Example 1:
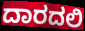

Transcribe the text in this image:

ದಾರದಲಿ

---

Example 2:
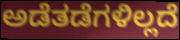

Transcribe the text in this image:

ಅಡೆತಡೆಗಳಿಲ್ಲದೆ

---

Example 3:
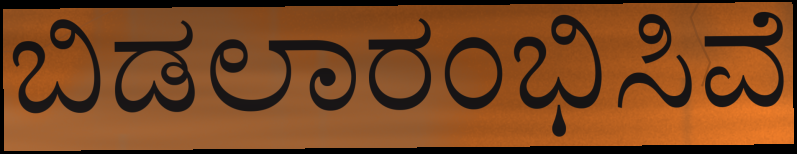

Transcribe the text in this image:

ಬಿಡಲಾರಂಭಿಸಿವೆ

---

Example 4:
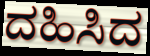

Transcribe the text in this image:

ದಹಿಸಿದ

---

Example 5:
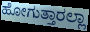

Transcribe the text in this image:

ಹೋಗುತ್ತಾರಲ್ಲಾ